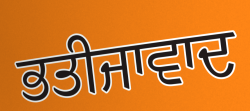
ਭਤੀਜਾਵਾਦ